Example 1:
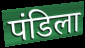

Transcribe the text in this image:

पंडिला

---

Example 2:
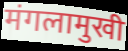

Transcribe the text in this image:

मंगलामुखी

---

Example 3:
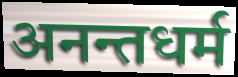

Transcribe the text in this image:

अनन्तधर्म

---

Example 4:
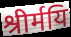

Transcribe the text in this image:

श्रीर्मयि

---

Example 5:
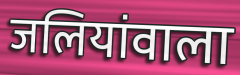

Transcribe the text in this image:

जलियांवाला